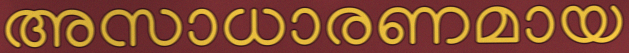
അസാധാരണമായ